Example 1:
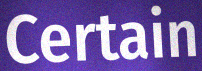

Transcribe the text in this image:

Certain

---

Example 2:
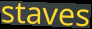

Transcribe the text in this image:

staves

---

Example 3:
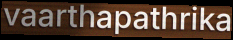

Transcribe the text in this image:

vaarthapathrika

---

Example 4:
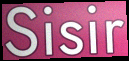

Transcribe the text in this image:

Sisir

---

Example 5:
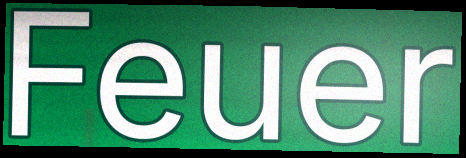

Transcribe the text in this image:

Feuer